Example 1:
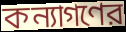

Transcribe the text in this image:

কন্যাগণের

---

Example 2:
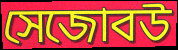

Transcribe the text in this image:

সেজোবউ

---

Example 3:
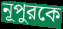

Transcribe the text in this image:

নূপুরকে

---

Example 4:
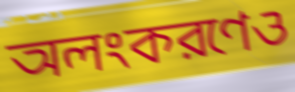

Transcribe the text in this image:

অলংকরণেও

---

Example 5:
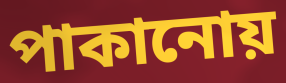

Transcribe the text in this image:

পাকানোয়